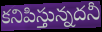
కనిపిస్తున్నదనీ